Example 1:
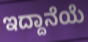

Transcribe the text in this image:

ಇದ್ದಾನೆಯೆ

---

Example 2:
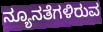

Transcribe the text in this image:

ನ್ಯೂನತೆಗಳಿರುವ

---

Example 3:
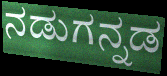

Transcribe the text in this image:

ನಡುಗನ್ನಡ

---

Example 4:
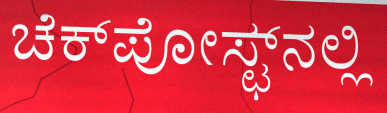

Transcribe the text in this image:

ಚೆಕ್‌ಪೋಸ್ಟ್‌ನಲ್ಲಿ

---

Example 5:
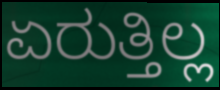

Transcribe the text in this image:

ಏರುತ್ತಿಲ್ಲ